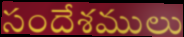
సందేశములు